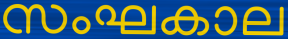
സംഘകാല